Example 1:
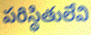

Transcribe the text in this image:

పరిస్థితులేవి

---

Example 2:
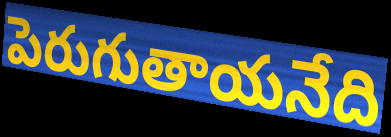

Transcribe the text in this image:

పెరుగుతాయనేది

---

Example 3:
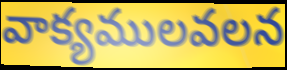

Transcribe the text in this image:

వాక్యములవలన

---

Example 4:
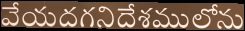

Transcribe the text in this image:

వేయదగనిదేశములోను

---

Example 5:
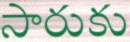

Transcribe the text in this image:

సారుకు